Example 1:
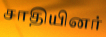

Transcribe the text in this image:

சாதியினர்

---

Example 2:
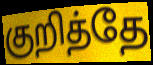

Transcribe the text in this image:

குறித்தே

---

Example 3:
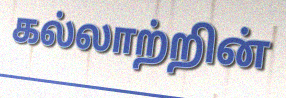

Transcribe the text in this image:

கல்லாற்றின்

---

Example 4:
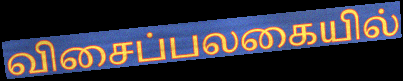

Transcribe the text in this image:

விசைப்பலகையில்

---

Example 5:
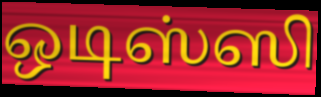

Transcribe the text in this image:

ஒடிஸ்ஸி